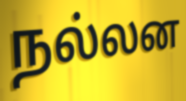
நல்லன